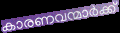
കാരണവന്മാർക്ക്